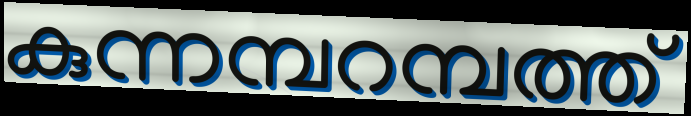
കുന്നമ്പറമ്പത്ത്